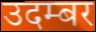
उदम्बर